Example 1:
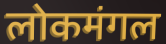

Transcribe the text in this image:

लोकमंगल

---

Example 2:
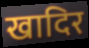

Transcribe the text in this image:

खादिर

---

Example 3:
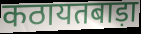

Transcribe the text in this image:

कठायतबाड़ा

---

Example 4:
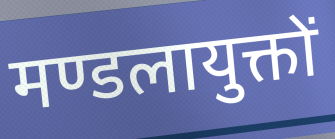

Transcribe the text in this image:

मण्डलायुक्तों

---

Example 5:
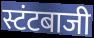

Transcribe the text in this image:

स्टंटबाजी